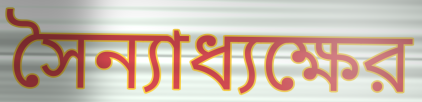
সৈন্যাধ্যক্ষের